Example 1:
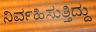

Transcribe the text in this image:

ನಿರ್ವಹಿಸುತ್ತಿದ್ದು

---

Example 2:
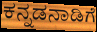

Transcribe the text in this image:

ಕನ್ನಡನಾಡಿಗೆ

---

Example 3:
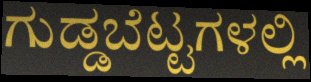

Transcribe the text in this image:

ಗುಡ್ಡಬೆಟ್ಟಗಳಲ್ಲಿ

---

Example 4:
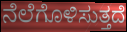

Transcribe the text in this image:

ನೆಲೆಗೊಳಿಸುತ್ತದೆ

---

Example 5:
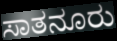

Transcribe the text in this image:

ಸಾತನೂರು